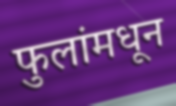
फुलांमधून